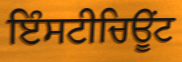
ਇੰਸਟੀਚਿਊਂਟ